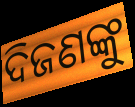
ଦିଜଣଙ୍କୁ